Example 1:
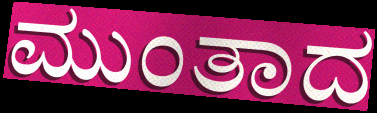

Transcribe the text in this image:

ಮುಂತಾದ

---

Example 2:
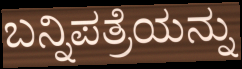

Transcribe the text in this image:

ಬನ್ನಿಪತ್ರೆಯನ್ನು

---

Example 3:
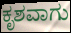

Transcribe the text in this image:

ಕೃಶವಾಗು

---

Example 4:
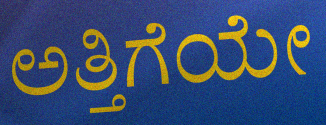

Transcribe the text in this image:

ಅತ್ತಿಗೆಯೇ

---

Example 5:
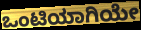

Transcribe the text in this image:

ಒಂಟಿಯಾಗಿಯೇ